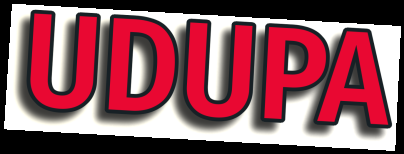
UDUPA